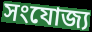
সংযোজ্য